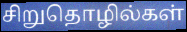
சிறுதொழில்கள்